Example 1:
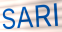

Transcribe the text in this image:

SARI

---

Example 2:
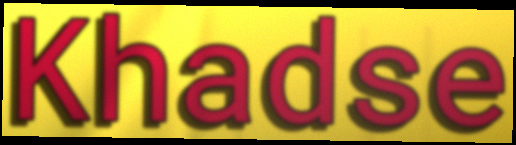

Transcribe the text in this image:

Khadse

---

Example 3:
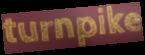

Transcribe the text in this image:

turnpike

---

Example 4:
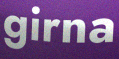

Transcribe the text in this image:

girna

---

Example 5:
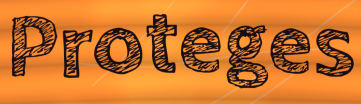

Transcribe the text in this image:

Proteges